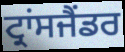
ਟ੍ਰਾਂਸਜੈਂਡਰ